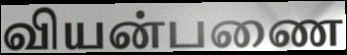
வியன்பணை